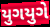
યુગયુગે